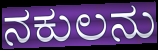
ನಕುಲನು